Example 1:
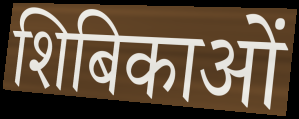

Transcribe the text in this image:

शिबिकाओं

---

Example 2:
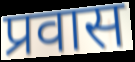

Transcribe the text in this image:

प्रवास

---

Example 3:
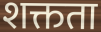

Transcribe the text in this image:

शक्तता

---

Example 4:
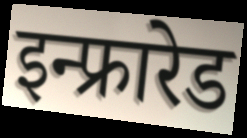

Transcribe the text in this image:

इन्फ्रारेड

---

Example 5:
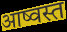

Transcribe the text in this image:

आष्वस्त